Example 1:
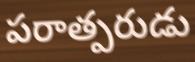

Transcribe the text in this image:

పరాత్పరుడు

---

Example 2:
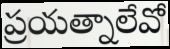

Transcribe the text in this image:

ప్రయత్నాలేవో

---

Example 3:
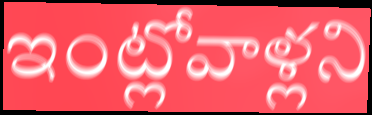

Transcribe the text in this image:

ఇంట్లోవాళ్లని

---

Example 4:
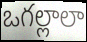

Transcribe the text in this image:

ఒగల్లాలా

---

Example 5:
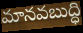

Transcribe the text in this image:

మానవబుద్ధి